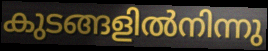
കുടങ്ങളിൽനിന്നു